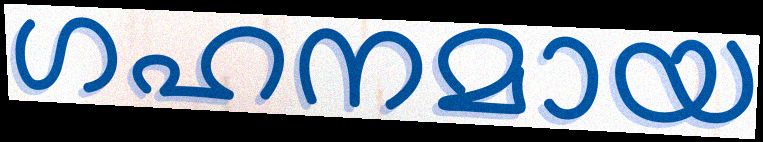
ഗഹനമായ